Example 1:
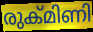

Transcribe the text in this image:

രുക്മിണി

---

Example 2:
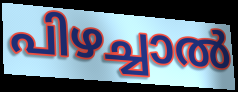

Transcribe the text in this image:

പിഴച്ചാൽ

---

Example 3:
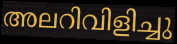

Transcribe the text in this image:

അലറിവിളിച്ചു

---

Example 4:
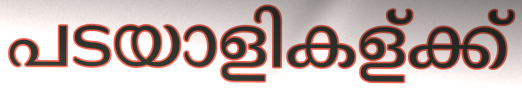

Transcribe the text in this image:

പടയാളികള്ക്ക്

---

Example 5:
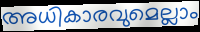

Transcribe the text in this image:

അധികാരവുമെല്ലാം